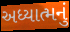
અધ્યાત્મનું